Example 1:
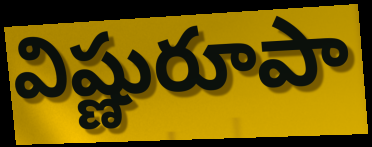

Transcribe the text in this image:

విష్ణురూపా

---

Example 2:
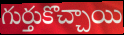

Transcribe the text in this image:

గుర్తుకొచ్చాయి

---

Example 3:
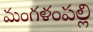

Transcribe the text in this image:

మంగళంపల్లి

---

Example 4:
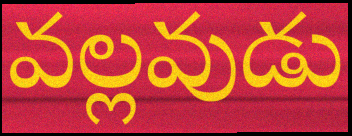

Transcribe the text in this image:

వల్లవుడు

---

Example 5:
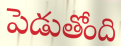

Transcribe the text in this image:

పెడుతోంది